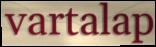
vartalap